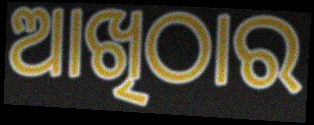
ଆଖିଠାର